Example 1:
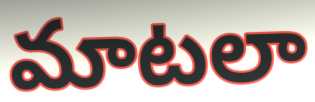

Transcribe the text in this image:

మాటలా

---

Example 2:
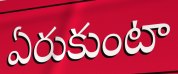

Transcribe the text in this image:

ఏరుకుంటా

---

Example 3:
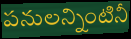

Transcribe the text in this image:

పనులన్నింటినీ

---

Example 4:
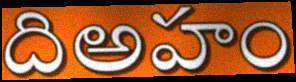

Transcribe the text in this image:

దిఅహం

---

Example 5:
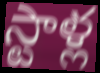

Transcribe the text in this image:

స్టాళ్ల